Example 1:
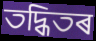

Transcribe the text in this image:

তদ্ধিতৰ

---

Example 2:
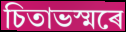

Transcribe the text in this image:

চিতাভস্মৰে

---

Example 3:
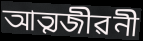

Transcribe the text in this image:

আত্মজীৱনী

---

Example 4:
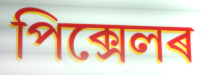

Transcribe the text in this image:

পিক্সেলৰ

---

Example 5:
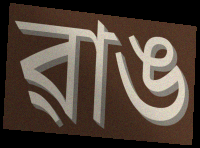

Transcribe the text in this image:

ৱাঙ